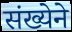
संख्येने